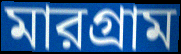
মারগ্রাম